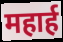
महार्ह